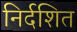
निर्दशित